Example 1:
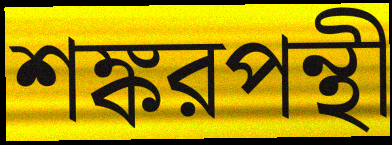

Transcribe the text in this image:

শঙ্করপন্থী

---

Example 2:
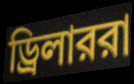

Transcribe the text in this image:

ড্রিলাররা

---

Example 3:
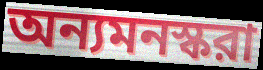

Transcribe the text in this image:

অন্যমনস্করা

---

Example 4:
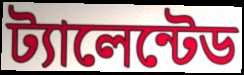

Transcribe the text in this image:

ট্যালেন্টেড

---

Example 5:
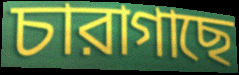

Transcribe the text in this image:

চারাগাছে